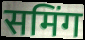
समिंग